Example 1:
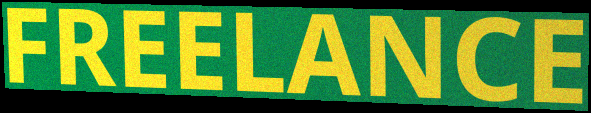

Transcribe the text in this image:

FREELANCE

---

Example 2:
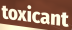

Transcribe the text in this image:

toxicant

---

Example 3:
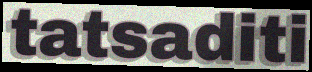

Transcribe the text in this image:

tatsaditi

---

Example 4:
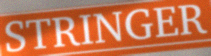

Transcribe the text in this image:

STRINGER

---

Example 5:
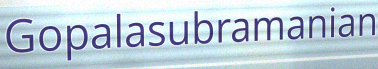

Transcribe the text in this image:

Gopalasubramanian